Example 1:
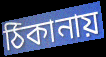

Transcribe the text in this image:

ঠিকানায়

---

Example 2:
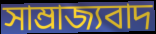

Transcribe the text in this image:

সাম্রাজ্যবাদ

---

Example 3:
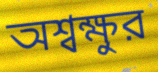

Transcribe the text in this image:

অশ্বক্ষুর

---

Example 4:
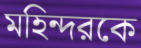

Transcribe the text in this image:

মহিন্দরকে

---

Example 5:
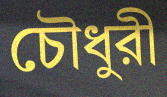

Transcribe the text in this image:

চৌধুরী